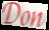
Don